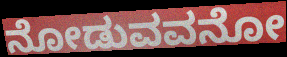
ನೋಡುವವನೋ